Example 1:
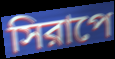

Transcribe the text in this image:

সিরাপে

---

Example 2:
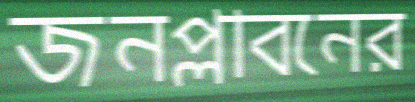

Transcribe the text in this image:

জনপ্লাবনের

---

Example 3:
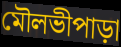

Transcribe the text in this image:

মৌলভীপাড়া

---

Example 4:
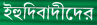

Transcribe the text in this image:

ইহুদিবাদীদের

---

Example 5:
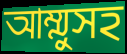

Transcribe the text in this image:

আম্মুসহ